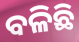
ବଳିଛି